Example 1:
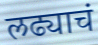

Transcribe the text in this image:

लढ्याचं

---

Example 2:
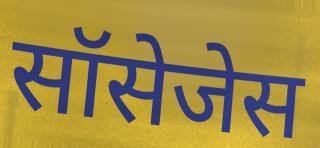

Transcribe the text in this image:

सॉसेजेस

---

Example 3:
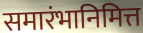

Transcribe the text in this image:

समारंभानिमित्त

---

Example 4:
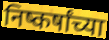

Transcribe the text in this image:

निष्कर्षांच्या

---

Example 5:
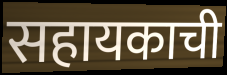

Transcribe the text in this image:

सहायकाची